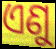
ଏଣୁ